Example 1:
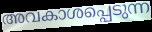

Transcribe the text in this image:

അവകാശപ്പെടുന്ന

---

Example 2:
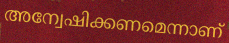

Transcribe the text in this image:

അന്വേഷിക്കണമെന്നാണ്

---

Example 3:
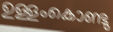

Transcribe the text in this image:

ഉള്ളംകൊണ്ടു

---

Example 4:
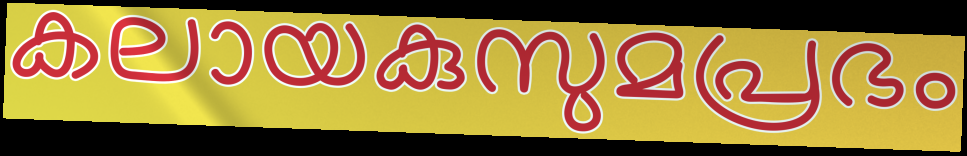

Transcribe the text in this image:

കലായകുസുമപ്രഭം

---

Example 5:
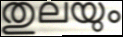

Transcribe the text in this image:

തുലയും